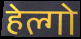
हेल्गो